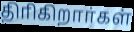
திரிகிறார்கள்